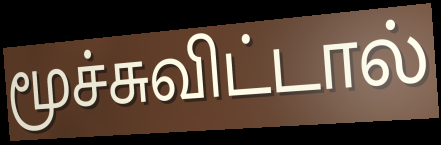
மூச்சுவிட்டால்